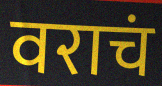
वराचं